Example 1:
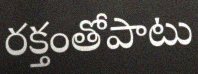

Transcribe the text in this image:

రక్తంతోపాటు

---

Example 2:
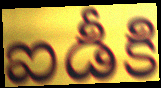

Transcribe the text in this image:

ఐడీకి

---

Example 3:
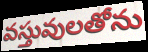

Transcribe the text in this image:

వస్తువులతోను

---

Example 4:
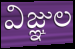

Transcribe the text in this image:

విజ్ఞుల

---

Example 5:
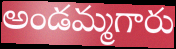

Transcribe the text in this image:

అండమ్మగారు